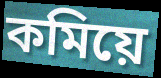
কমিয়ে